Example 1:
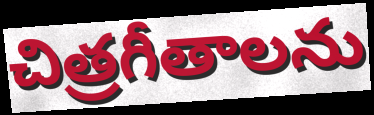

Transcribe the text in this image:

చిత్రగీతాలను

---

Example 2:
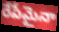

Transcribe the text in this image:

రేపేమైనా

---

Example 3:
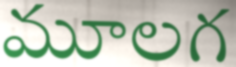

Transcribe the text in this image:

మూలగ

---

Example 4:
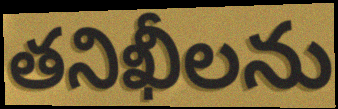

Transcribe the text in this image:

తనిఖీలను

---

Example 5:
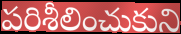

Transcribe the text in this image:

పరిశీలించుకుని